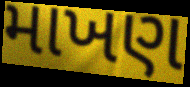
માખણ